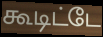
கூடிட்டே